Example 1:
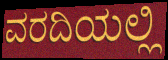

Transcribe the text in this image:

ವರದಿಯಲ್ಲಿ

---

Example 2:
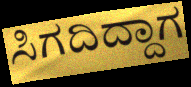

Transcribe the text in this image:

ಸಿಗದಿದ್ದಾಗ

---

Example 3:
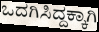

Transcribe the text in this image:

ಒದಗಿಸಿದ್ದಕ್ಕಾಗಿ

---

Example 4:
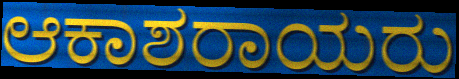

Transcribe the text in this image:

ಆಕಾಶರಾಯರು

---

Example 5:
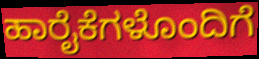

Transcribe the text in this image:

ಹಾರೈಕೆಗಳೊಂದಿಗೆ